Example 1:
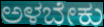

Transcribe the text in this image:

ಅಳಬೇಕು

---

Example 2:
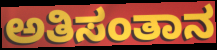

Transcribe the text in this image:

ಅತಿಸಂತಾನ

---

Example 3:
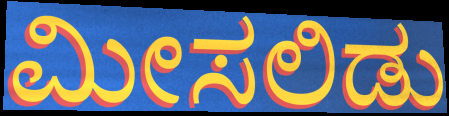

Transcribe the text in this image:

ಮೀಸಲಿಡು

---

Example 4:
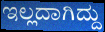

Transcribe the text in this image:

ಇಲ್ಲದಾಗಿದ್ದು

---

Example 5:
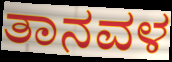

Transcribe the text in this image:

ತಾನವಳ